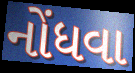
નોંધવા